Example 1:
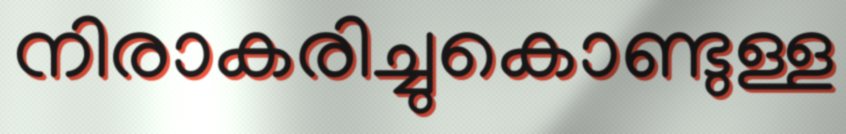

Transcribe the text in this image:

നിരാകരിച്ചുകൊണ്ടുള്ള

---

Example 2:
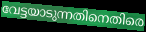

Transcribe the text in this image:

വേട്ടയാടുന്നതിനെതിരെ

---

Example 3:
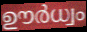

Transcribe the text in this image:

ഊർധ്വം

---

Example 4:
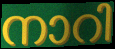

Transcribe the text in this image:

നാറി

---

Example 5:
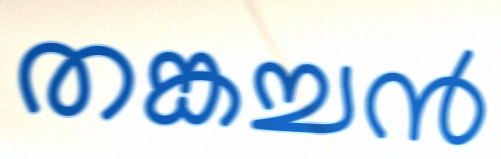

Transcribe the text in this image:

തങ്കച്ചൻ